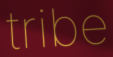
tribe